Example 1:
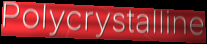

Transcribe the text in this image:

Polycrystalline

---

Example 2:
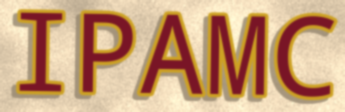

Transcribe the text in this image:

IPAMC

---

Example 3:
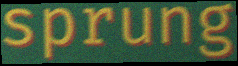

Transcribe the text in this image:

sprung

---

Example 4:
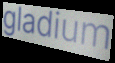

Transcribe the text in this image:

gladium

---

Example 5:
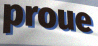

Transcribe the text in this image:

proue